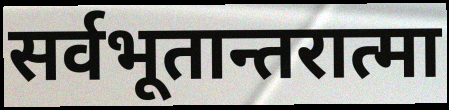
सर्वभूतान्तरात्मा